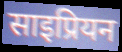
साइप्रियन